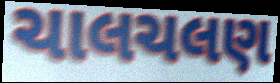
ચાલચલણ